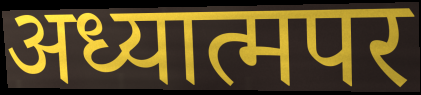
अध्यात्मपर